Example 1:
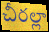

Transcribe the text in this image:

చీరల్లా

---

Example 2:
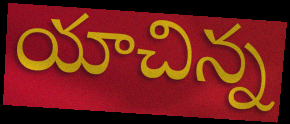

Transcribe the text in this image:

యాచిన్న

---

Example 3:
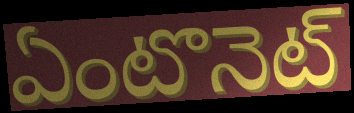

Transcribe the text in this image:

ఏంటొనెట్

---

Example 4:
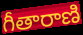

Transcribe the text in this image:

గీతారాణి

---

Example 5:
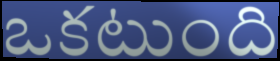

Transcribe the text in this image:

ఒకటుంది